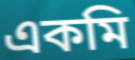
একমি